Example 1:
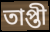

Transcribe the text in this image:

তাপ্তী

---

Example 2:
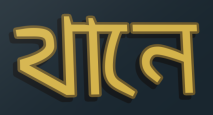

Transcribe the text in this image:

থানে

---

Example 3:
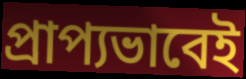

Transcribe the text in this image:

প্রাপ্যভাবেই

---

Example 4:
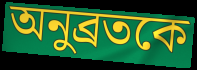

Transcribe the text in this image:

অনুব্রতকে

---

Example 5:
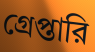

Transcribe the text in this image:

গ্রেপ্তারি